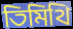
তিমিথি